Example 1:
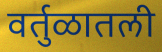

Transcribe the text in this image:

वर्तुळातली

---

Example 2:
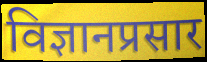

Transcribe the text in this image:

विज्ञानप्रसार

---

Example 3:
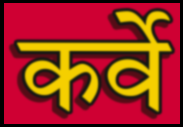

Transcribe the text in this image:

कर्वे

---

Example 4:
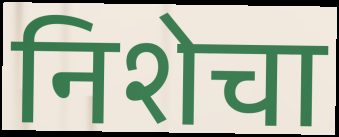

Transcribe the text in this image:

निशेचा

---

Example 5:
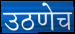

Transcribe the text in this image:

उठणेच